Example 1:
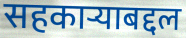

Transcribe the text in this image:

सहकाऱ्याबद्दल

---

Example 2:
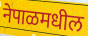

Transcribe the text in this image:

नेपाळमधील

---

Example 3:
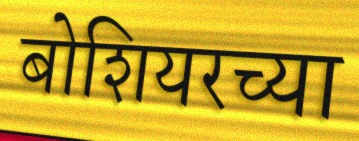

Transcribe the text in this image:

बोशियरच्या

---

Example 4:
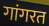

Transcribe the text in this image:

गांगरत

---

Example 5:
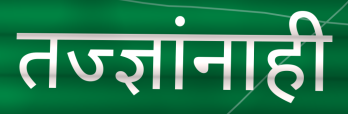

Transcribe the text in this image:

तज्ज्ञांनाही